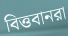
বিত্তবানরা